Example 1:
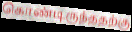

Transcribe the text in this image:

கொண்டிருந்ததற்கு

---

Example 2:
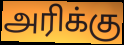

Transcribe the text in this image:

அரிக்கு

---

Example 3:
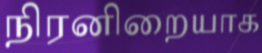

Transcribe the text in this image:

நிரனிறையாக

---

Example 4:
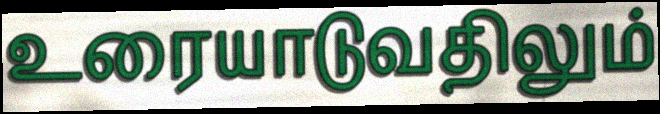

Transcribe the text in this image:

உரையாடுவதிலும்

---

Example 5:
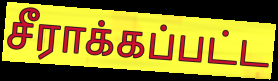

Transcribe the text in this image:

சீராக்கப்பட்ட